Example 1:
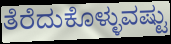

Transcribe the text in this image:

ತೆರೆದುಕೊಳ್ಳುವಷ್ಟು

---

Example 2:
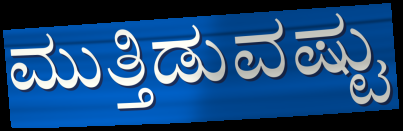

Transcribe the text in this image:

ಮುತ್ತಿಡುವಷ್ಟು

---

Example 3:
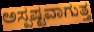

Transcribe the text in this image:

ಅಸ್ಪಷ್ಟವಾಗುತ್ತ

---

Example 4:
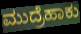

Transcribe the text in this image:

ಮುದ್ರೆಹಾಕು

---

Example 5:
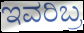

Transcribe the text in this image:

ಇವರಿಬ್ರ